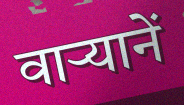
वार्‍यानें